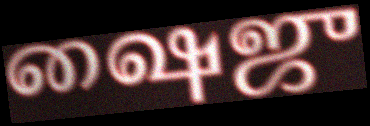
ஷைஜு